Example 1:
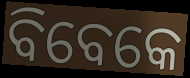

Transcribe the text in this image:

ବିବେକେ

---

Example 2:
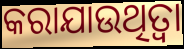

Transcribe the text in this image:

କରାଯାଉଥିତ୍ବା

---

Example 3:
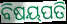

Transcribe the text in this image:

ବିଷୟପତି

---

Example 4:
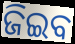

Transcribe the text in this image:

ଜିଇବ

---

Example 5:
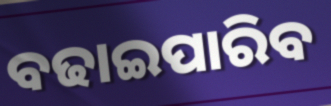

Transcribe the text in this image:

ବଢାଇପାରିବ